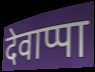
देवाप्पा